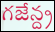
గజేన్ద్ర